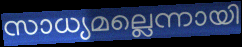
സാധ്യമല്ലെന്നായി